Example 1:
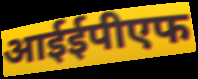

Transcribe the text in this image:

आईईपीएफ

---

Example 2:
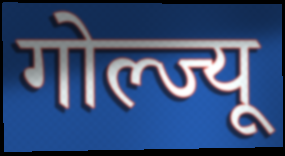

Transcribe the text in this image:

गोल्ज्यू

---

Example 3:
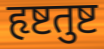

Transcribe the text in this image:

हृष्टतुष्ट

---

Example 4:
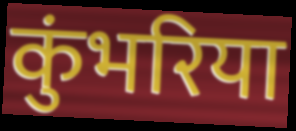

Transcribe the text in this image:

कुंभरिया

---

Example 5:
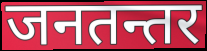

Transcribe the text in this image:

जनतन्तर